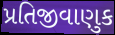
પ્રતિજીવાણુક